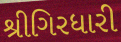
શ્રીગિરધારી